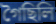
গৈছিলি